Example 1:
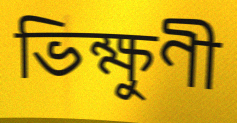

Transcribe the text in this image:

ভিক্ষুণী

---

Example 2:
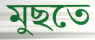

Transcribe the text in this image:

মুছতে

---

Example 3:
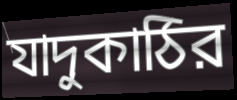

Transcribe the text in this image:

যাদুকাঠির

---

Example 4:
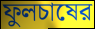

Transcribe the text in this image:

ফুলচাষের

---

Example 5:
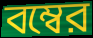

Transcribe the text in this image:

বম্বের